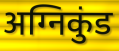
अग्निकुंड